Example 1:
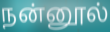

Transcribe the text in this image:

நன்னூல்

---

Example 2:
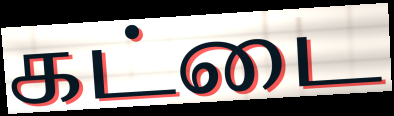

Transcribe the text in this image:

கட்டை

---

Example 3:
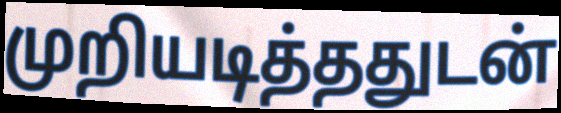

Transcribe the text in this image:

முறியடித்ததுடன்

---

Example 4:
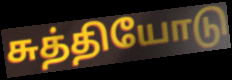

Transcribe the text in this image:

சுத்தியோடு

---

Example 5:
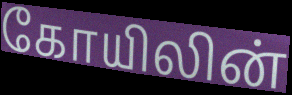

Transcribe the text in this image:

கோயிலின்